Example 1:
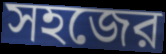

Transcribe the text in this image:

সহজের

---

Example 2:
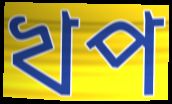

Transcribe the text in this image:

খপ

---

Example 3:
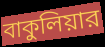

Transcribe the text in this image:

বাকুলিয়ার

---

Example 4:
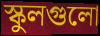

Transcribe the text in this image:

স্কুলগুলো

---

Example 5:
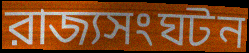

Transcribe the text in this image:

রাজ্যসংঘটন